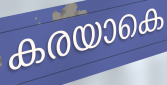
കരയാകെ